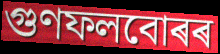
গুণফলবোৰৰ